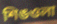
শিঙওলা